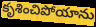
కృశించిపోయాను